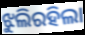
ଝୁଲିରହିଲା